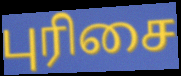
புரிசை